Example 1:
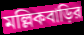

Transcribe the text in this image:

মল্লিকবাড়ির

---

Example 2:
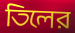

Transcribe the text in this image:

তিলের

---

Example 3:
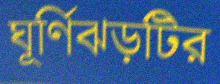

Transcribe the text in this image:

ঘূর্ণিঝড়টির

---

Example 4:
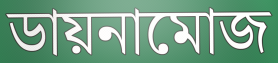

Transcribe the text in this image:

ডায়নামোজ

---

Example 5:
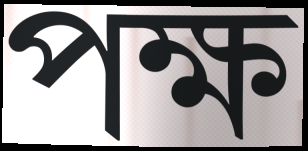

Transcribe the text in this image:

পক্ষ